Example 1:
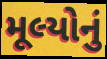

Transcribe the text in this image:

મૂલ્યોનું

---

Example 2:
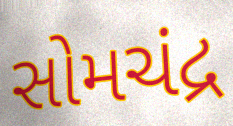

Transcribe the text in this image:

સોમચંદ્ર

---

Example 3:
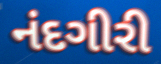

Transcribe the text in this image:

નંદગીરી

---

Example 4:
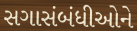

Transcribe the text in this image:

સગાસંબંધીઓને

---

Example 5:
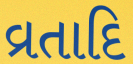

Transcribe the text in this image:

વ્રતાદિ